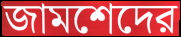
জামশেদের